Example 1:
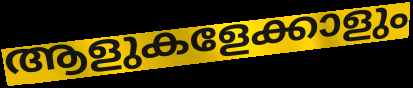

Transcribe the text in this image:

ആളുകളേക്കാളും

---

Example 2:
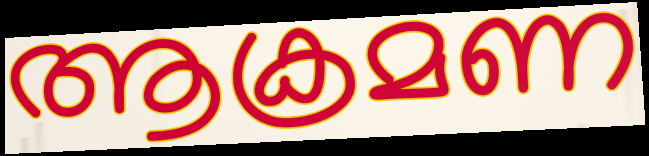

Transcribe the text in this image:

ആക്രമണ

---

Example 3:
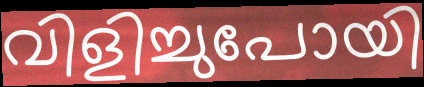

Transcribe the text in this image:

വിളിച്ചുപോയി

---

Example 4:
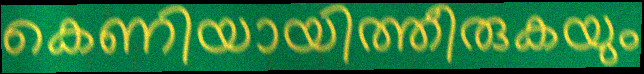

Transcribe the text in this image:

കെണിയായിത്തീരുകയും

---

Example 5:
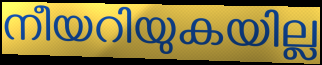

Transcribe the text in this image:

നീയറിയുകയില്ല